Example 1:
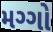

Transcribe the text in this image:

મગ્ગો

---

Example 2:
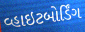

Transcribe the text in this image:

વ્હાઇટબોર્ડિંગ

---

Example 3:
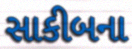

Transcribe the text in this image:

સાકીબના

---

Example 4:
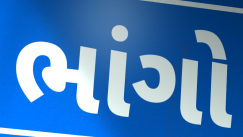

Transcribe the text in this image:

ભાંગો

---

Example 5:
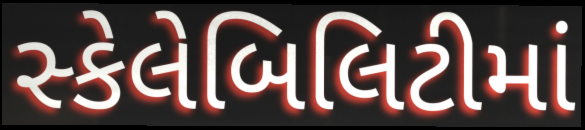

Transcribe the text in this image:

સ્કેલેબિલિટીમાં